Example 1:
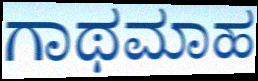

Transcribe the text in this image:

ಗಾಥಮಾಹ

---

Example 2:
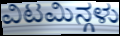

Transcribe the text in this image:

ವಿಟಮಿನ್ಗಳು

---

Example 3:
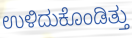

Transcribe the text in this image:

ಉಳಿದುಕೊಂಡಿತ್ತು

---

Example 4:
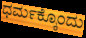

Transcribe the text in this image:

ಧರ್ಮಕ್ಕೊಂದು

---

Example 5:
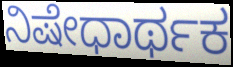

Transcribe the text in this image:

ನಿಷೇಧಾರ್ಥಕ